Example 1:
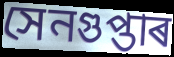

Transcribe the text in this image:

সেনগুপ্তাৰ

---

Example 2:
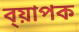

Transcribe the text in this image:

ব্য়াপক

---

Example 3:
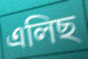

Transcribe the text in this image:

এলিছ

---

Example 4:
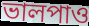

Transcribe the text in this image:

ভালপাও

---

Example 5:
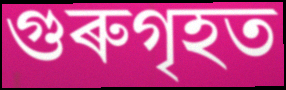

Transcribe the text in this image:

গুৰুগৃহত